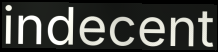
indecent